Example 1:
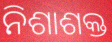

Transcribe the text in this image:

ନିଶାଶକ୍ତ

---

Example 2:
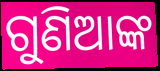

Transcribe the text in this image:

ଗୁଣିଆଙ୍କ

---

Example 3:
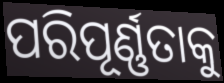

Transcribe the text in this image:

ପରିପୂର୍ଣ୍ଣତାକୁ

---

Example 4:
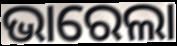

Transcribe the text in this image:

ଭାରେଲା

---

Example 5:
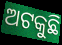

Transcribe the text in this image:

ଅଟକୁଛି